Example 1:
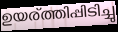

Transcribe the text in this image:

ഉയര്ത്തിപ്പിടിച്ചു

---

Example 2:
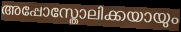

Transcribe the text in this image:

അപ്പോസ്തോലിക്കയായും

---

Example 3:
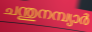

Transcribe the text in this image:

ചന്തുനമ്പ്യാർ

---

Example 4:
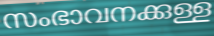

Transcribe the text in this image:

സംഭാവനക്കുള്ള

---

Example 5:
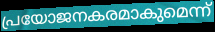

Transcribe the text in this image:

പ്രയോജനകരമാകുമെന്ന്